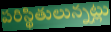
పరిస్థితులున్నట్లు